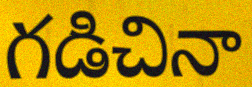
గడిచినా